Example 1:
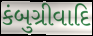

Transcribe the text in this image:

કંબુગ્રીવાદિ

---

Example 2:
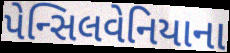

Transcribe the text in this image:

પેન્સિલવેનિયાના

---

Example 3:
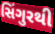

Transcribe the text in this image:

સિંગુરથી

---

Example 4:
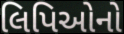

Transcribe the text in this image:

લિપિઓનો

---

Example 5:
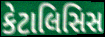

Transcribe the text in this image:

કેટાલિસિસ